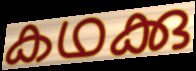
കഥക്കു